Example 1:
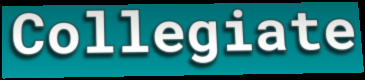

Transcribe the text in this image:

Collegiate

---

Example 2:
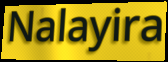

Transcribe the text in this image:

Nalayira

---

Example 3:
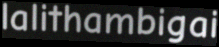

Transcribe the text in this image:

lalithambigai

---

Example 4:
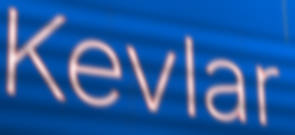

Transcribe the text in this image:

Kevlar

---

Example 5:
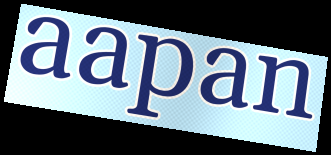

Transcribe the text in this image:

aapan